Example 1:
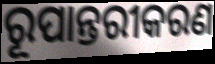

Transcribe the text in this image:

ରୂପାନ୍ତରୀକରଣ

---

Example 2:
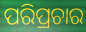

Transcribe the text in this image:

ପରିପ୍ରଚାର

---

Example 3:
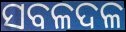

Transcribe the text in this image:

ସବଳଦଳ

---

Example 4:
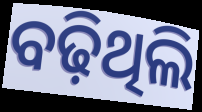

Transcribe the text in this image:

ବଢ଼ିଥିଲି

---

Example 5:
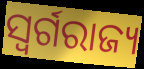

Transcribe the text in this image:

ସ୍ୱର୍ଗରାଜ୍ୟ